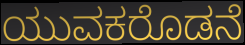
ಯುವಕರೊಡನೆ